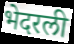
भेदरली